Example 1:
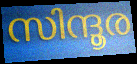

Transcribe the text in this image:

സിന്ദൂര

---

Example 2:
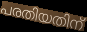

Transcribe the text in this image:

പരതിയതിന്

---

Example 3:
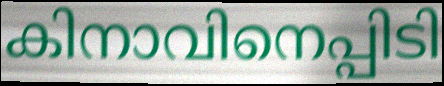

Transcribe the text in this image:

കിനാവിനെപ്പിടി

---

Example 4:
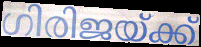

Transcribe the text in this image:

ഗിരിജയ്ക്ക്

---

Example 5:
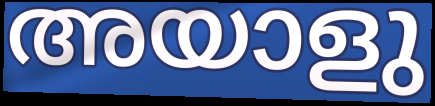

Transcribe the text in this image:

അയാളു